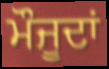
ਮੌਜੂਦਾਂ